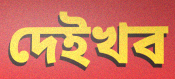
দেইখব